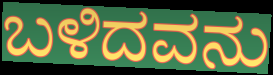
ಬಳಿದವನು